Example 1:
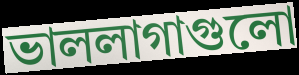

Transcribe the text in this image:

ভাললাগাগুলো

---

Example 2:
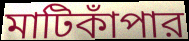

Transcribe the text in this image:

মাটিকাঁপার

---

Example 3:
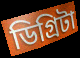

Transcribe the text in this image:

ডিগ্রিটা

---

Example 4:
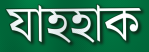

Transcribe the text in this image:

যাহহাক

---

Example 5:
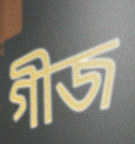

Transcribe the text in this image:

গীজ